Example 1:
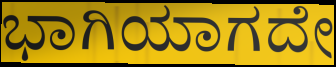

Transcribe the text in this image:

ಭಾಗಿಯಾಗದೇ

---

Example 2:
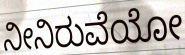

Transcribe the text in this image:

ನೀನಿರುವೆಯೋ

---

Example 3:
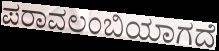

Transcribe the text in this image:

ಪರಾವಲಂಬಿಯಾಗದೆ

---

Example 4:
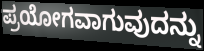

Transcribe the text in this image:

ಪ್ರಯೋಗವಾಗುವುದನ್ನು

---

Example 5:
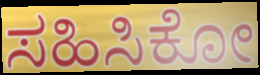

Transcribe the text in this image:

ಸಹಿಸಿಕೋ